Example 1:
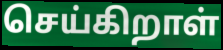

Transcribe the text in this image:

செய்கிறாள்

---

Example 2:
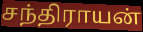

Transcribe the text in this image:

சந்திராயன்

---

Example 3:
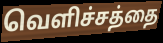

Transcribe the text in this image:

வெளிச்சத்தை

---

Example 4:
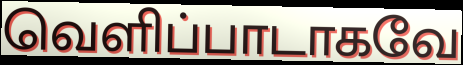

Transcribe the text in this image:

வெளிப்பாடாகவே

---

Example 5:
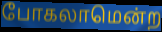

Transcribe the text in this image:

போகலாமென்ற